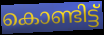
കൊണ്ടിട്ട്